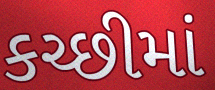
કચ્છીમાં